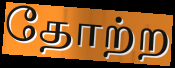
தோற்ற